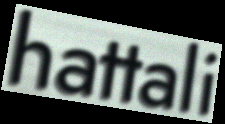
hattali